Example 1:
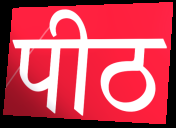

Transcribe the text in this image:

पीठ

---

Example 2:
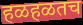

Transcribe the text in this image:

हळहळतच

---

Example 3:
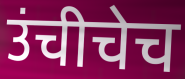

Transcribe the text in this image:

उंचीचेच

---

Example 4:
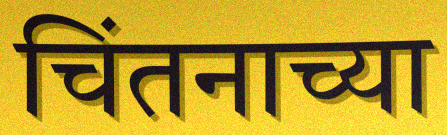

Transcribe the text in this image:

चिंतनाच्या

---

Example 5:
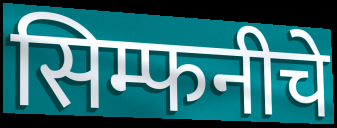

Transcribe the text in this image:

सिम्फनीचे